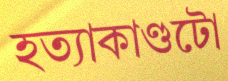
হত্যাকাণ্ডটো